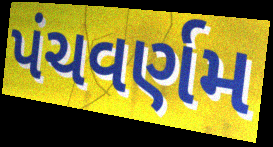
પંચવર્ણમ